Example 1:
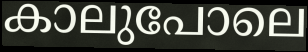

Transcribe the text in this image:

കാലുപോലെ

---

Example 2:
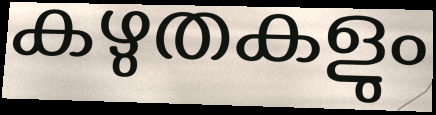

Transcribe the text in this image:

കഴുതകളും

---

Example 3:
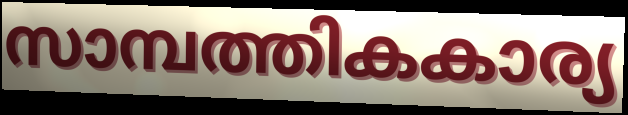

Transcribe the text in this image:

സാമ്പത്തികകാര്യ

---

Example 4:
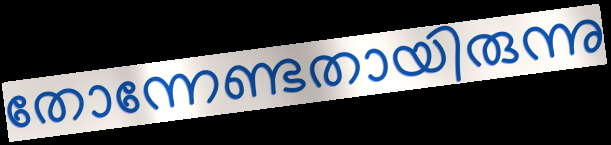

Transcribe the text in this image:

തോന്നേണ്ടതായിരുന്നു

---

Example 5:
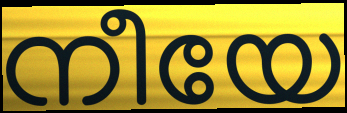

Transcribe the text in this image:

നീയേ